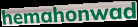
hemahonwad